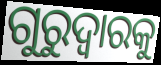
ଗୁରୁଦ୍ୱାରକୁ